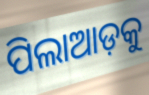
ପିଲାଆଡ଼କୁ